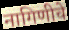
नागिणीचे